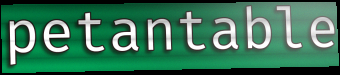
petantable